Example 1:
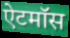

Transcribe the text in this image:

ऐटमॉस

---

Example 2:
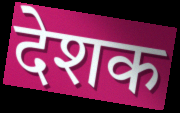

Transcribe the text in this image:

देशक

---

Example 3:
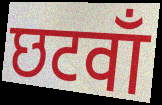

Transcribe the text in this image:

छटवाँ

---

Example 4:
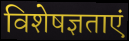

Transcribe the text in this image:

विशेषज्ञताएं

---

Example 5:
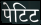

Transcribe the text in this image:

पेटिट